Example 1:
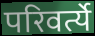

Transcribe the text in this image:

परिवर्त्ये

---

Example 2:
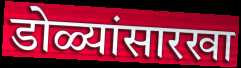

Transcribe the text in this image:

डोळ्यांसारखा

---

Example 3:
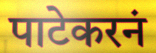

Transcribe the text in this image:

पाटेकरनं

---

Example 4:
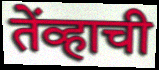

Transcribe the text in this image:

तेंव्हाची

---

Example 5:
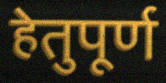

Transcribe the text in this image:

हेतुपूर्ण